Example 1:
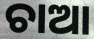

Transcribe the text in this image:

ଚାଆ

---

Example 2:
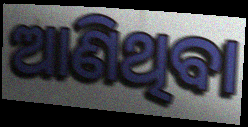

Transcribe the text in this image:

ଆଣିଥିବା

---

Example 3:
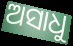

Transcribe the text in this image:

ଅସାଧୁ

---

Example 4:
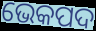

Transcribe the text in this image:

ଭେକପଦ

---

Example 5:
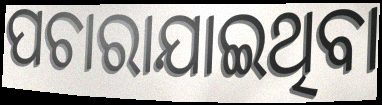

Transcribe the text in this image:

ପଚାରାଯାଇଥିବା